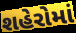
શહેરોમાં